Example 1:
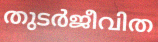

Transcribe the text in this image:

തുടർജീവിത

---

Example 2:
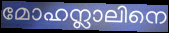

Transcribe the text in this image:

മോഹന്ലാലിനെ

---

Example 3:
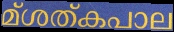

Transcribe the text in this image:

മ്ശത്കപാല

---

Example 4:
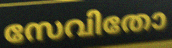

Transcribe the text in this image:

സേവിതോ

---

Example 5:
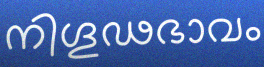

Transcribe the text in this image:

നിഗൂഢഭാവം